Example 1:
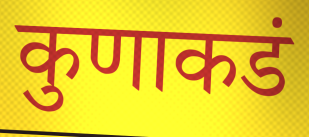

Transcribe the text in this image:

कुणाकडं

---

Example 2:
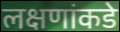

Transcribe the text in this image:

लक्षणांकडे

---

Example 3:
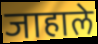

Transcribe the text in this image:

जाहाले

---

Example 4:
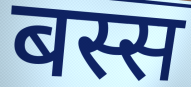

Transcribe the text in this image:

बस्स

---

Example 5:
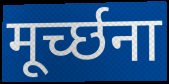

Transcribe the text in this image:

मूर्च्छना